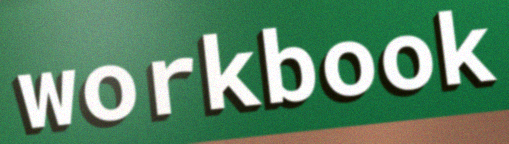
workbook